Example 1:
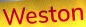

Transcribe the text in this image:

Weston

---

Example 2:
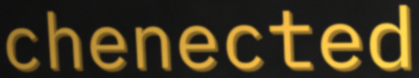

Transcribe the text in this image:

chenected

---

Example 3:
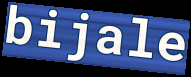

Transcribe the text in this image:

bijale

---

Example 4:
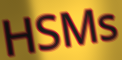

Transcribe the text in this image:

HSMs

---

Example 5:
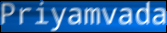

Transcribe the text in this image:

Priyamvada